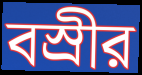
বস্রীর